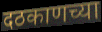
दठकाणच्या